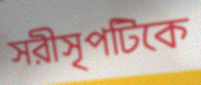
সরীসৃপটিকে